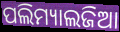
ପଲିମ୍ୟାଲଜିଆ